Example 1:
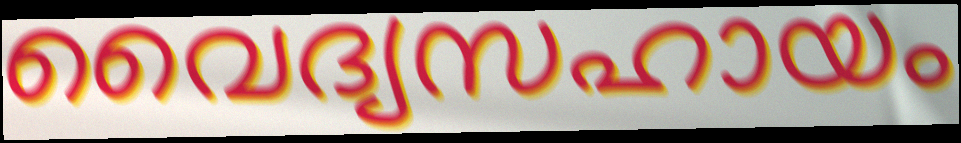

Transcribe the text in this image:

വൈദ്യസഹായം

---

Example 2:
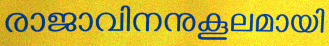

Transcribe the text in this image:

രാജാവിനനുകൂലമായി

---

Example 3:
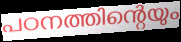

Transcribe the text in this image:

പഠനത്തിന്റെയും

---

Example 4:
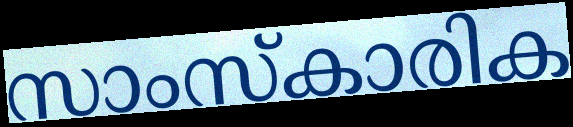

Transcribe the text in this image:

സാംസ്കാരിക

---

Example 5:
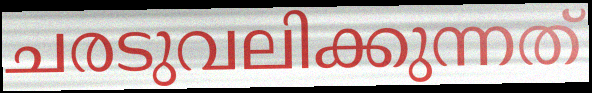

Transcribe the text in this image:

ചരടുവലിക്കുന്നത്